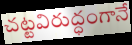
చట్టవిరుద్ధంగానే